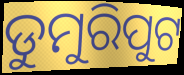
ଡୁମୁରିପୁଟ